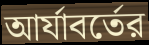
আর্যাবর্তের